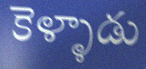
కెళ్ళాడు